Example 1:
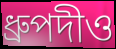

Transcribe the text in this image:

ধ্রুপদীও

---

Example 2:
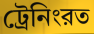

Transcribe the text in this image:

ট্রেনিংরত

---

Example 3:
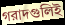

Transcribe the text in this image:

গরাদগুলিই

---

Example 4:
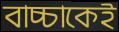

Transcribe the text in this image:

বাচ্চাকেই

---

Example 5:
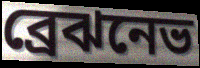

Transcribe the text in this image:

ব্রেঝনেভ